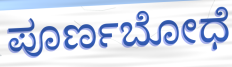
ಪೂರ್ಣಬೋಧೆ